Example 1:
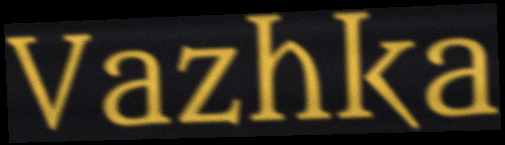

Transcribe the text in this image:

Vazhka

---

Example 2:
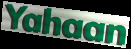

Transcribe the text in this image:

Yahaan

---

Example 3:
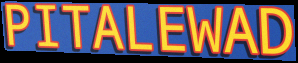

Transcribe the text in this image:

PITALEWAD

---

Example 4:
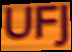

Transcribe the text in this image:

UFJ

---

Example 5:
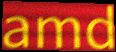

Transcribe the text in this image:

amd